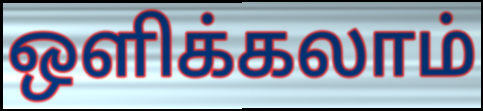
ஒளிக்கலாம்